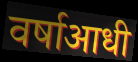
वर्षाआधी